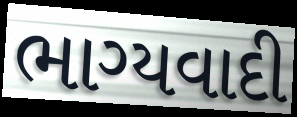
ભાગ્યવાદી